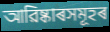
আৱিষ্কাৰসমূহৰ